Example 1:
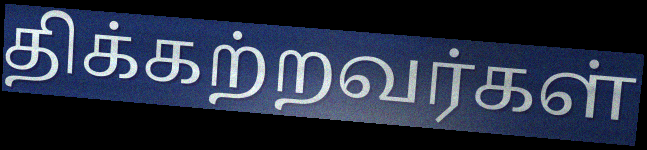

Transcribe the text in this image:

திக்கற்றவர்கள்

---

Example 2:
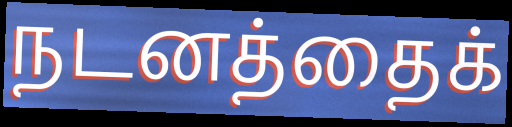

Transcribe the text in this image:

நடனத்தைக்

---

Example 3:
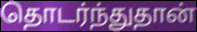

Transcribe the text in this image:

தொடர்ந்துதான்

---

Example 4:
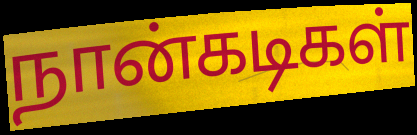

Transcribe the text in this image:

நான்கடிகள்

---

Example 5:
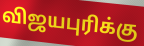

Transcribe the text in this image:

விஜயபுரிக்கு